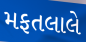
મફતલાલે